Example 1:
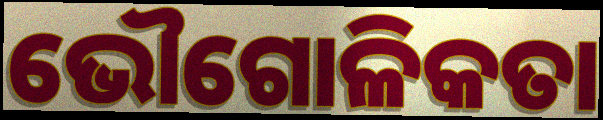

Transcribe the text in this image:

ଭୌଗୋଳିକତା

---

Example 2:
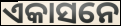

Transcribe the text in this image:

ଏକାସନେ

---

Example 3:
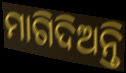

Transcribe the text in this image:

ମାଗିଦିଅନ୍ତି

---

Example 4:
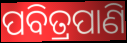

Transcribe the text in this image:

ପବିତ୍ରପାଣି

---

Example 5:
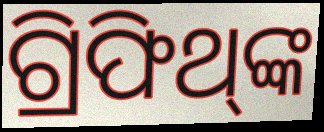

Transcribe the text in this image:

ଗ୍ରିଫିଥ୍‌ଙ୍କ